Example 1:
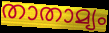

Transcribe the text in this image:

താതാമ്യം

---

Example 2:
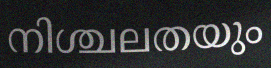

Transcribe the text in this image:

നിശ്ചലതയും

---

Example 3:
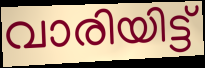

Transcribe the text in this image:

വാരിയിട്ട്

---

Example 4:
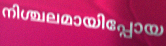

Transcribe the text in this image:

നിശ്ചലമായിപ്പോയ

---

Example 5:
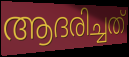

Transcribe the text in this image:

ആദരിച്ചത്